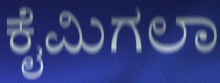
ಕೈಮಿಗಲಾ